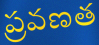
ప్రవణత